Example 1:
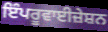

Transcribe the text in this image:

ਇੰਪਰੂਵਾਈਜ਼ੇਸ਼ਨ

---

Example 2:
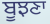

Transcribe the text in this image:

ਬੂਝਣਾ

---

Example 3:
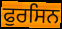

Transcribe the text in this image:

ਫੁਰਸਿਨ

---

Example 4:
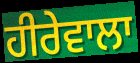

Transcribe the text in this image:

ਹੀਰੇਵਾਲਾ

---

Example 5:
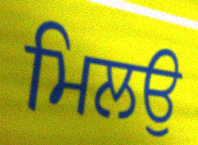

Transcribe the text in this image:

ਮਿਲਉ